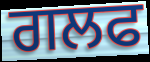
ਗਲਫ